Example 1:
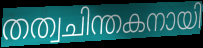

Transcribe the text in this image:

തത്വചിന്തകനായി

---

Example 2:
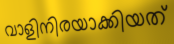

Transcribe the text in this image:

വാളിനിരയാക്കിയത്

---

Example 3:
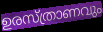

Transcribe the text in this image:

ഉരസ്ത്രാണവും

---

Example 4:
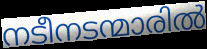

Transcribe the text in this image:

നടീനടന്മാരിൽ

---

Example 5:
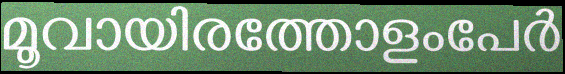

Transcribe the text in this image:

മൂവായിരത്തോളംപേർ